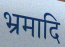
भ्रमादि